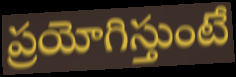
ప్రయోగిస్తుంటే